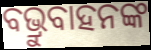
ବଭ୍ରୁବାହନଙ୍କ